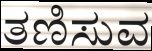
ತಣಿಸುವ